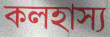
কলহাস্য